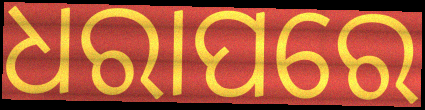
ଧରାପରେ